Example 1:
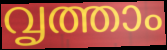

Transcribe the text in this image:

വൃത്താം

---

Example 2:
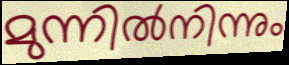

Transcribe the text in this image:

മുന്നിൽനിന്നും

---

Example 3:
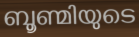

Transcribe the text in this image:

ബൂണ്മിയുടെ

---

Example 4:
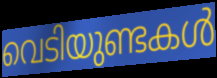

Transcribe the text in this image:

വെടിയുണ്ടകൾ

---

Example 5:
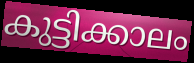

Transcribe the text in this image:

കുട്ടിക്കാലം